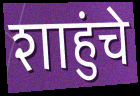
शाहुंचे